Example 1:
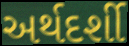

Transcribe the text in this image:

અર્થદર્શી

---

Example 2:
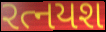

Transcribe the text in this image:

રત્નયશ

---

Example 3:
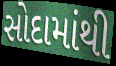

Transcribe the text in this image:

સોદામાંથી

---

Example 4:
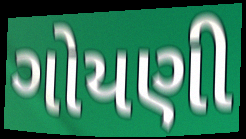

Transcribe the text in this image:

ગોયણી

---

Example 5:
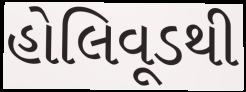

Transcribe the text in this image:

હોલિવૂડથી